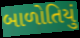
બાળોતિયું